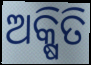
ଅକ୍ଷିତି